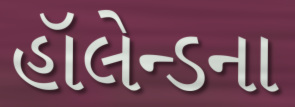
હૉલેન્ડના